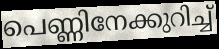
പെണ്ണിനേക്കുറിച്ച്